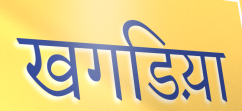
खगडिय़ा